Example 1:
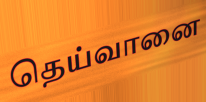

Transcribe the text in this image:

தெய்வானை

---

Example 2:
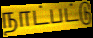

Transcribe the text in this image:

நாட்பட்டு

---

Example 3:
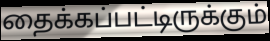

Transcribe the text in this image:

தைக்கப்பட்டிருக்கும்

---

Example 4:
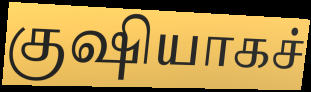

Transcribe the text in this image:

குஷியாகச்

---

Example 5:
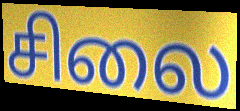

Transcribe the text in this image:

சிலை